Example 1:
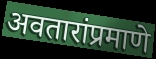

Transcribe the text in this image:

अवतारांप्रमाणे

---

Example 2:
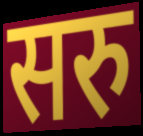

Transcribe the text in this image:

सरु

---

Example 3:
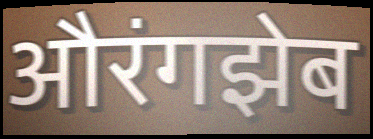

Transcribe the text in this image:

औरंगझेब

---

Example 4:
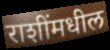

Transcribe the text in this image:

राशींमधील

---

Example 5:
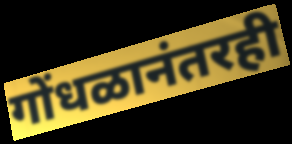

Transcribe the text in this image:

गोंधळानंतरही